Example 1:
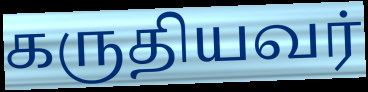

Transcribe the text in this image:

கருதியவர்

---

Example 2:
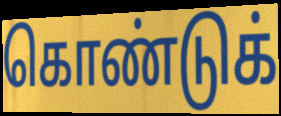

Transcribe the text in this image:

கொண்டுக்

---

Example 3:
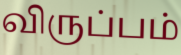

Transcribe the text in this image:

விருப்பம்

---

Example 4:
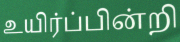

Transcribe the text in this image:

உயிர்ப்பின்றி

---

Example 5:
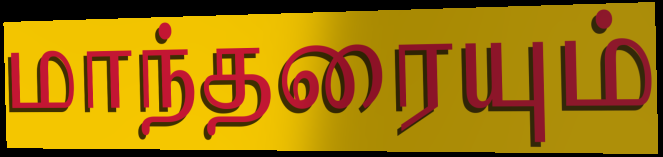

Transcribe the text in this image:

மாந்தரையும்